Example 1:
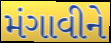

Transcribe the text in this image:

મંગાવીને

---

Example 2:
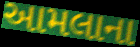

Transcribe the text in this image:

આમલાના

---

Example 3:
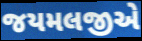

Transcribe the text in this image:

જયમલજીએ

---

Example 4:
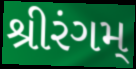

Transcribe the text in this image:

શ્રીરંગમ્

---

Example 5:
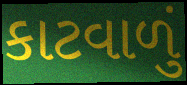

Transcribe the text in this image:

કાટવાળું